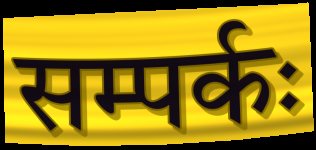
सम्पर्कः